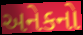
અનેકનો